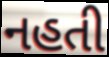
નહતી